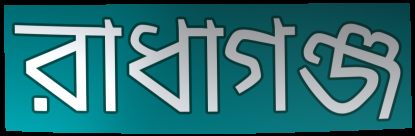
রাধাগঞ্জ